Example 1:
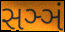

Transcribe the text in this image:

સઞ્ઞં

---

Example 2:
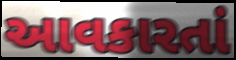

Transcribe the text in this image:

આવકારતાં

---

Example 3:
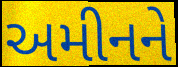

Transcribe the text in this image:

અમીનને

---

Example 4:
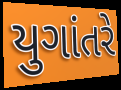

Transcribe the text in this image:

યુગાંતરે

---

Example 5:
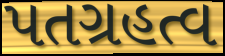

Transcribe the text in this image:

પતગ્રહત્વ